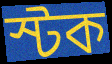
স্টক